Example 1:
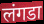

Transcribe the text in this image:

लंगडा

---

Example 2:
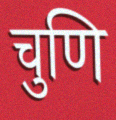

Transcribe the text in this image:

चुणि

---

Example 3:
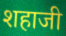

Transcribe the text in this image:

शहाजी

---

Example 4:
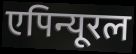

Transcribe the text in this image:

एपिन्यूरल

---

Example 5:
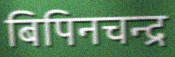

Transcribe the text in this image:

बिपिनचन्द्र